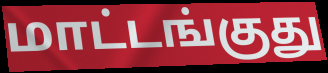
மாட்டங்குது